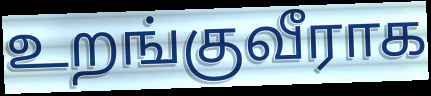
உறங்குவீராக